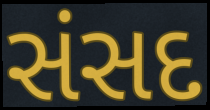
સંસદ